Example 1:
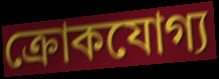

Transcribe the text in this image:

ক্রোকযোগ্য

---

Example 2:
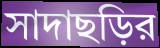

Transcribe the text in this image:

সাদাছড়ির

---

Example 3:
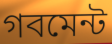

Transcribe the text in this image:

গবমেন্ট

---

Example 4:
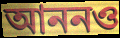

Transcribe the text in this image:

আননও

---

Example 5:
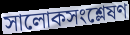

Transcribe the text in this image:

সালোকসংশ্লেষণ